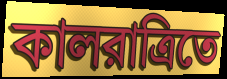
কালরাত্রিতে